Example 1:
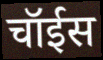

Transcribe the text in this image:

चॉईस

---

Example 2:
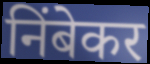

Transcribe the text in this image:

निंबेकर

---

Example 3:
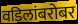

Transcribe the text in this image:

वडिलांबरोबर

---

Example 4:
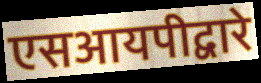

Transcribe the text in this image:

एसआयपीद्वारे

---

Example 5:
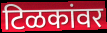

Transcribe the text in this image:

टिळकांवर